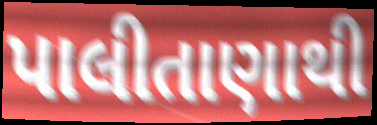
પાલીતાણાથી